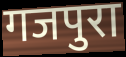
गजपुरा